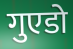
गुएडो